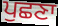
ਪੁਛਣਾ